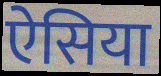
ऐसिया